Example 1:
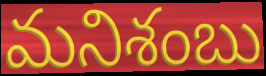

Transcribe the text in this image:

మనిశంబు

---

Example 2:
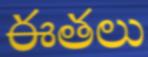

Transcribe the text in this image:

ఈతలు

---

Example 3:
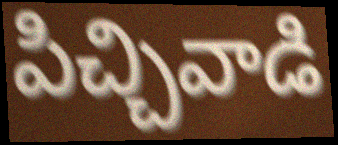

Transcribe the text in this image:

పిచ్చివాడి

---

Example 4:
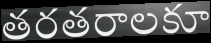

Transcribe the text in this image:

తరతరాలకూ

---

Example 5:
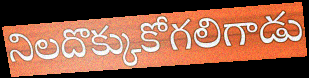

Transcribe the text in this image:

నిలదొక్కుకోగలిగాడు